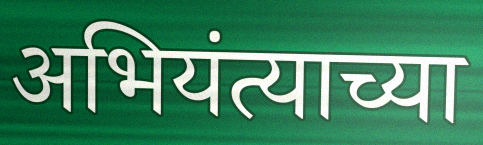
अभियंत्याच्या